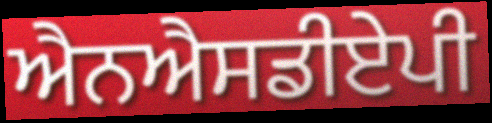
ਐਨਐਸਡੀਏਪੀ